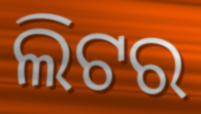
ଲିଟର